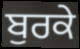
ਬੁਰਕੇ